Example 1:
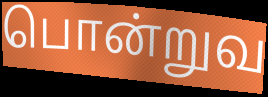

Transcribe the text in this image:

பொன்றுவ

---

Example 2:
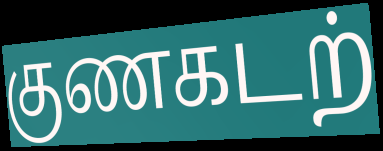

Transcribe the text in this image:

குணகடற்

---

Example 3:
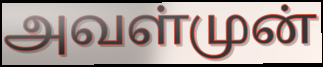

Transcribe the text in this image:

அவள்முன்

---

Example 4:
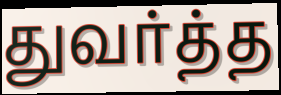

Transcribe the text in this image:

துவர்த்த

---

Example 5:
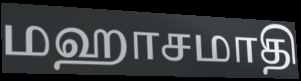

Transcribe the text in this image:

மஹாசமாதி